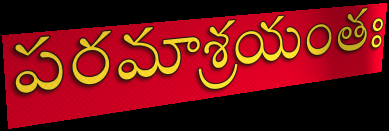
పరమాశ్రయంతః